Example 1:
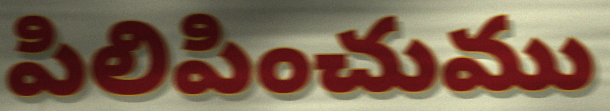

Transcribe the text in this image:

పిలిపించుము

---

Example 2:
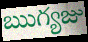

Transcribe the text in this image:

ఋగ్యజు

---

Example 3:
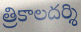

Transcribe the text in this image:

త్రికాలదర్శి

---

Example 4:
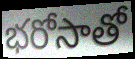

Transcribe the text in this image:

భరోసాతో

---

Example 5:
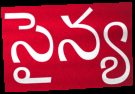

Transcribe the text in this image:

సైన్య